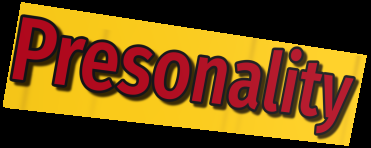
Presonality